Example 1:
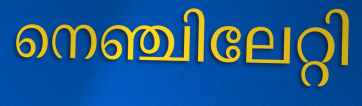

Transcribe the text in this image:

നെഞ്ചിലേറ്റി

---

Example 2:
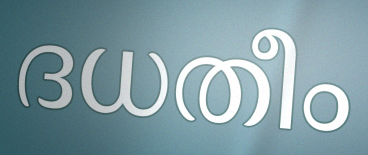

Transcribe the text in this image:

ദധതീം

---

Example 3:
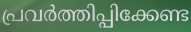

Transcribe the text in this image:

പ്രവർത്തിപ്പിക്കേണ്ട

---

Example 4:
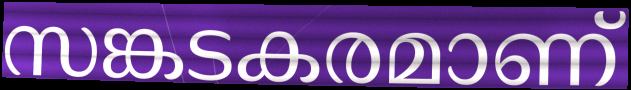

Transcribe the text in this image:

സങ്കടകരമാണ്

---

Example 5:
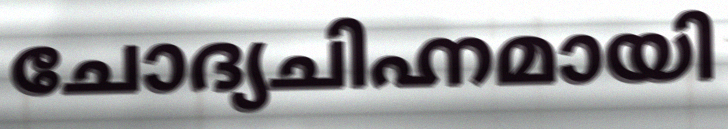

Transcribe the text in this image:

ചോദ്യചിഹ്നമായി